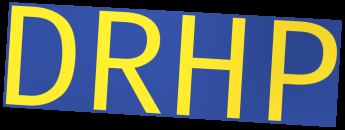
DRHP